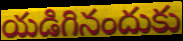
యడిగినందుకు